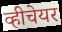
व्हीचेयर